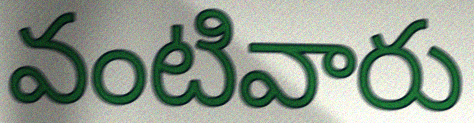
వంటివారు